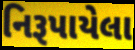
નિરૂપાયેલા